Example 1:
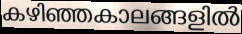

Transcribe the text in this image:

കഴിഞ്ഞകാലങ്ങളിൽ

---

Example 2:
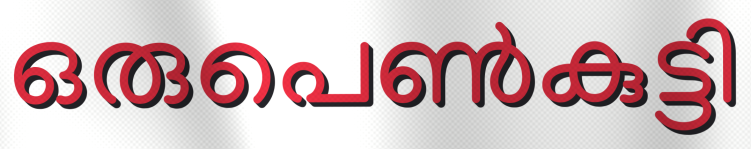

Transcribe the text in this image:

ഒരുപെൺകുട്ടി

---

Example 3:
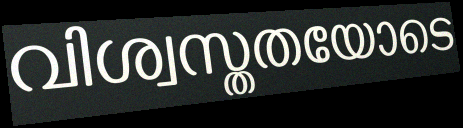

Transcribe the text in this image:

വിശ്വസ്തതയോടെ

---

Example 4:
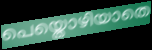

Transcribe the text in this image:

പെയ്തൊഴിയാതെ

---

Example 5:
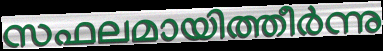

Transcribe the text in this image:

സഫലമായിത്തീർന്നു